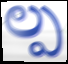
ల్ప